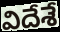
విదేశే